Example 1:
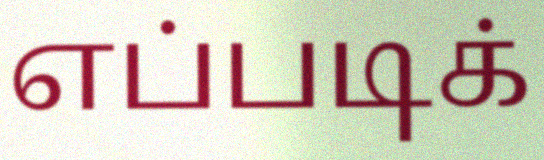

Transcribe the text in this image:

எப்படிக்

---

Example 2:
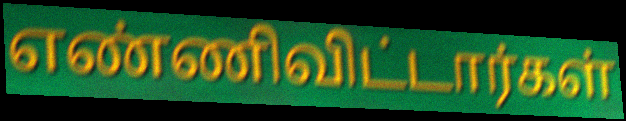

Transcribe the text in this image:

எண்ணிவிட்டார்கள்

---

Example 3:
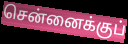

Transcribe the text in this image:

சென்னைக்குப்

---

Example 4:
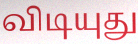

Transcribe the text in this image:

விடியுது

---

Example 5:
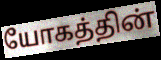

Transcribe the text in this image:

யோகத்தின்